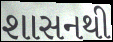
શાસનથી